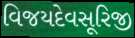
વિજયદેવસૂરિજી